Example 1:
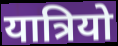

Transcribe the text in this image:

यात्रियो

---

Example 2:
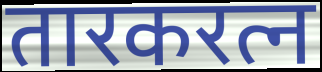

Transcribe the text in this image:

तारकरत्न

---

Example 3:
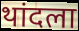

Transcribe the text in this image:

थांदला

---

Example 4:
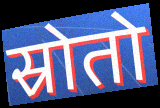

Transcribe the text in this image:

स्रोतो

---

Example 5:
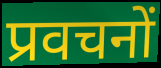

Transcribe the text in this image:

प्रवचनों